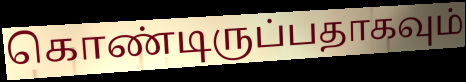
கொண்டிருப்பதாகவும்